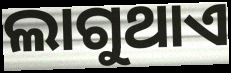
ଲାଗୁଥାଏ